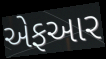
એફઆર